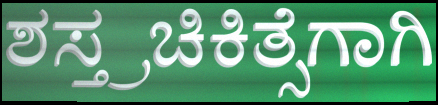
ಶಸ್ತ್ರಚಿಕಿತ್ಸೆಗಾಗಿ